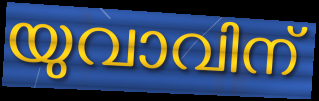
യുവാവിന്